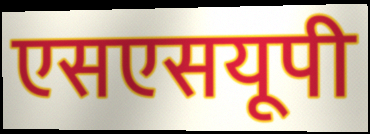
एसएसयूपी